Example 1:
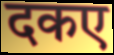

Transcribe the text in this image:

दकए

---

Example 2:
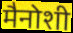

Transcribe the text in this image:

मैनोशी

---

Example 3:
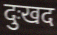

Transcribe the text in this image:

दुःखद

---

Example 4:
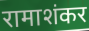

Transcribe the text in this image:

रामाशंकर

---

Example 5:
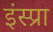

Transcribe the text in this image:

इंस्प्रा